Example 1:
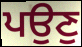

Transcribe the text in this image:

ਪਉਣੁ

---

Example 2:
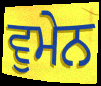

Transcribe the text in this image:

ਵੁਮੇਨ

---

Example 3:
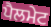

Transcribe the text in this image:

ਪੈਲਮੇਟ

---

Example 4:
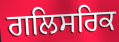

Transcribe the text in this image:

ਗਲਿਸਰਿਕ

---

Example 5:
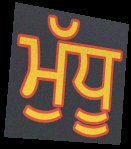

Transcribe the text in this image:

ਮੁੱਧੂ